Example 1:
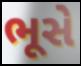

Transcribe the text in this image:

ભૂસે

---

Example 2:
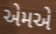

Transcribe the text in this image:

એમએ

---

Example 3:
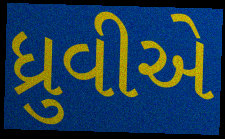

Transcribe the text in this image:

ધ્રુવીએ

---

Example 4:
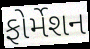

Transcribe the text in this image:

ફોર્મેશન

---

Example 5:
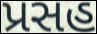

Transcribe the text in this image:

પ્રસહ